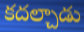
కదల్చాడు